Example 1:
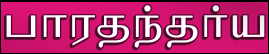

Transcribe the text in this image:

பாரதந்தர்ய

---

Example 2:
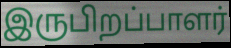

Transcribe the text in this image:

இருபிறப்பாளர்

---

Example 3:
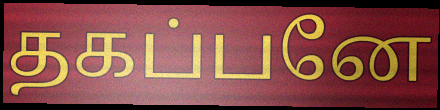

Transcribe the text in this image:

தகப்பனே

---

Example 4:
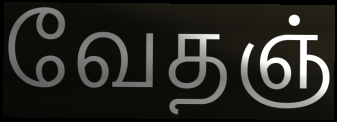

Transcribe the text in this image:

வேதஞ்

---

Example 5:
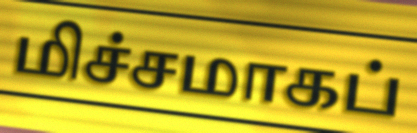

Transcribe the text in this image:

மிச்சமாகப்